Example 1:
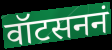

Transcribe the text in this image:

वॉटसननं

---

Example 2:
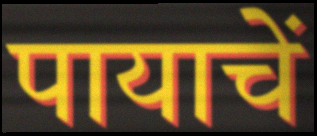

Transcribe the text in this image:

पायाचें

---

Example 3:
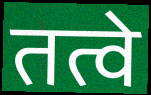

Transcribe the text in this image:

तत्वे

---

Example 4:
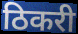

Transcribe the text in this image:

ठिकरी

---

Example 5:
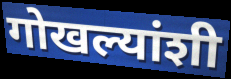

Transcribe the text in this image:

गोखल्यांशी